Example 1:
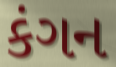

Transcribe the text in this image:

કંગન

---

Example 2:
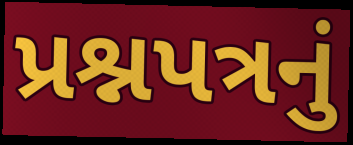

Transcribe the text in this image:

પ્રશ્નપત્રનું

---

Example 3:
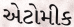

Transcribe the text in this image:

એટોમીક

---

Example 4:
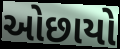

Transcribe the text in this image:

ઓછાયો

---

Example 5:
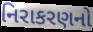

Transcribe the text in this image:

નિરાકરણનો